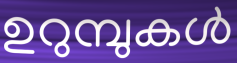
ഉറുമ്പുകൾ